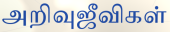
அறிவுஜீவிகள்